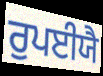
ਰੁਪਈਯੈ